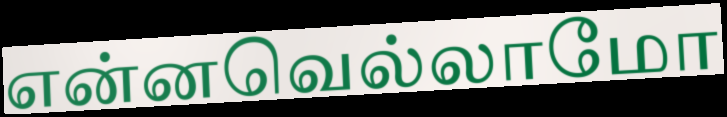
என்னவெல்லாமோ